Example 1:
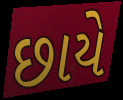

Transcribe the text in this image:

છાયે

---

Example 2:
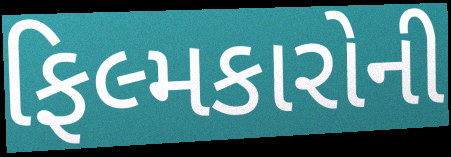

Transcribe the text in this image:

ફિલ્મકારોની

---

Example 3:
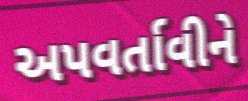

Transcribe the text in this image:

અપવર્તાવીને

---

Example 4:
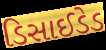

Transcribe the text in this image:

ડિસાઈડેડ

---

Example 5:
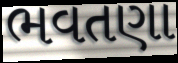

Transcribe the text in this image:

ભવતણા